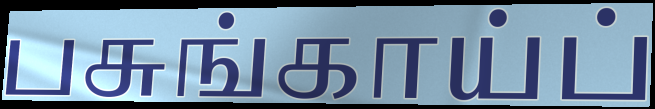
பசுங்காய்ப்